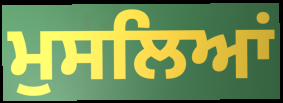
ਮੁਸਲਿਆਂ